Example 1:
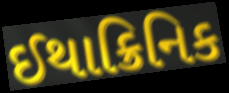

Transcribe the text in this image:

ઈથાક્રિનિક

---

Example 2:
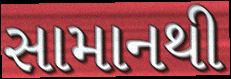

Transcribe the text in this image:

સામાનથી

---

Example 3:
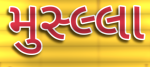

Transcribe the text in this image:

મુસ્લ્લા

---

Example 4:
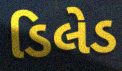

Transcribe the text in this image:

ડિલેડ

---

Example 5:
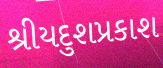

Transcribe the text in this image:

શ્રીયદુશપ્રકાશ